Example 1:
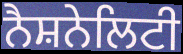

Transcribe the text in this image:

ਨੈਸ਼ਨੇਲਿਟੀ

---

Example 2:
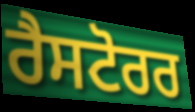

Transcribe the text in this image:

ਰੈਸਟੋਰਰ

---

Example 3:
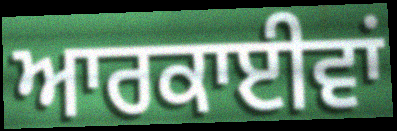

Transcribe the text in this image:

ਆਰਕਾਈਵਾਂ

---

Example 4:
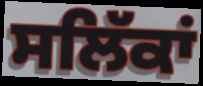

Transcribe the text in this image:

ਸਲਿੱਕਾਂ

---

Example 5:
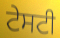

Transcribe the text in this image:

ਟੇਸਟੀ